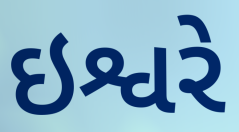
ઇશ્વરે